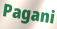
Pagani